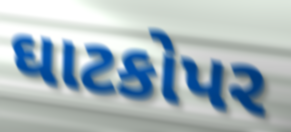
ઘાટકોપર